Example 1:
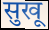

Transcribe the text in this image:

सुखू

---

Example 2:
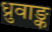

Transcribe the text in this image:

ध्रुवाङ्क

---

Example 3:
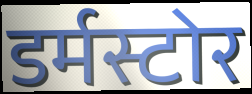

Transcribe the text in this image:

डर्मस्टोर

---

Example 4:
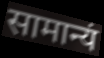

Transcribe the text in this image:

सामान्यं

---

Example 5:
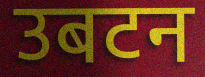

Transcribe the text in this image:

उबटन